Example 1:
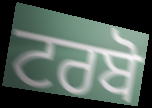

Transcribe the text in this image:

ਟਰਬੋ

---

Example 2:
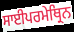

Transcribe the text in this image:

ਸਾਈਪਰਮੇਥ੍ਰਿਨ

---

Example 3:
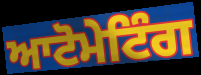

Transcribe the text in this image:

ਆਟੋਮੇਟਿੰਗ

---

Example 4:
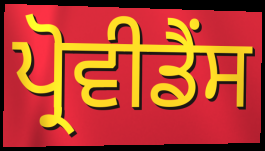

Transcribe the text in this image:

ਪ੍ਰੋਵੀਡੈਂਸ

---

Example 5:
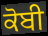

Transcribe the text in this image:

ਕੋਬੀ